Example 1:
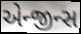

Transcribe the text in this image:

એન્જીન્સ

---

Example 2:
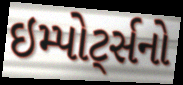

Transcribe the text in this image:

ઇમ્પોર્ટ્સનો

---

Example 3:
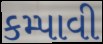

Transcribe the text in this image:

કમ્પાવી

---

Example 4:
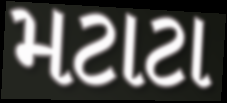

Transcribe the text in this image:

મટાટા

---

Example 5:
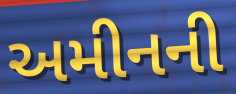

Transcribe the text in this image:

અમીનની